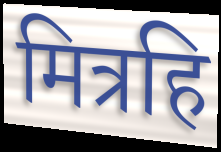
मित्रहि